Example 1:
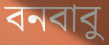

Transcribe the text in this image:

বনবাবু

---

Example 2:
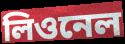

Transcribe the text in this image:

লিওনেল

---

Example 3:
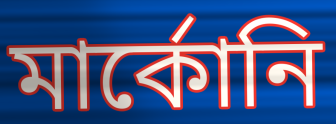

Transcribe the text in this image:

মার্কোনি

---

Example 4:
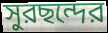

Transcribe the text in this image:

সুরছন্দের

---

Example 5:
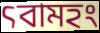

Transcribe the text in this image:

ৎবামহং